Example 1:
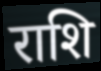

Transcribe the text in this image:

राशि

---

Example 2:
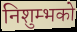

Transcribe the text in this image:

निशुम्भको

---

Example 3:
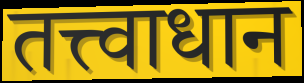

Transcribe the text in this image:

तत्त्वाधान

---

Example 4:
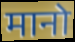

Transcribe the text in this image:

मानो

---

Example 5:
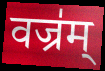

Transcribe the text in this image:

वज्र॑म्